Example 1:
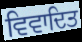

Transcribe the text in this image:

ਵਿਵਾਦਿਤ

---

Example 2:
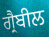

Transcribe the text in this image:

ਗ੍ਰੈਬੀਲ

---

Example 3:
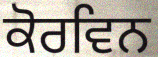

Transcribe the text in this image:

ਕੋਰਵਿਨ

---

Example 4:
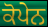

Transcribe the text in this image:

ਕੋਪੇਨ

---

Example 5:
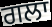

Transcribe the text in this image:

ਗਲਾ